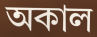
অকাল